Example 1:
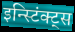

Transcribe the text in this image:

इन्स्टिंक्ट्स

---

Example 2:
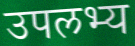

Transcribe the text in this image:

उपलभ्य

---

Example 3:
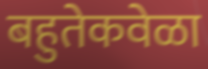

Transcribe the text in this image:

बहुतेकवेळा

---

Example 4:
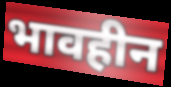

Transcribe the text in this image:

भावहीन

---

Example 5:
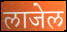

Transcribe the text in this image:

लाजेल